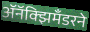
ॲनॅक्झिमँडरने